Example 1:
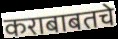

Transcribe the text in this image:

कराबाबतचे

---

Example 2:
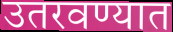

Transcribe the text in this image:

उतरवण्यात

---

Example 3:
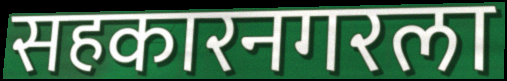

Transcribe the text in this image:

सहकारनगरला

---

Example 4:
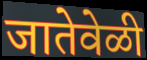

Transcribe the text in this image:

जातेवेळी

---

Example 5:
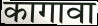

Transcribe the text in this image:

कागावा